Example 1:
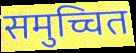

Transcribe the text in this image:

समुच्चित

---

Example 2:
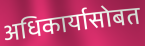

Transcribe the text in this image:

अधिकार्यासोबत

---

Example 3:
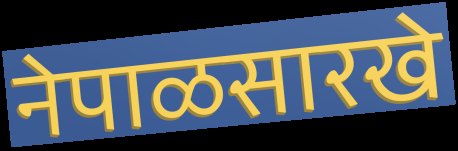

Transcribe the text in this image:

नेपाळसारखे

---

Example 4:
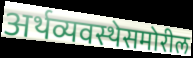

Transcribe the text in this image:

अर्थव्यवस्थेसमोरील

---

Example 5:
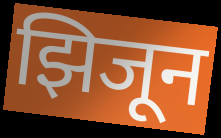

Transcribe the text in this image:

झिजून